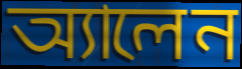
অ্যালেন